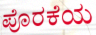
ಪೊರಕೆಯ